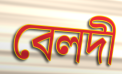
বেলদী